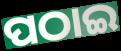
ପଠାଇ